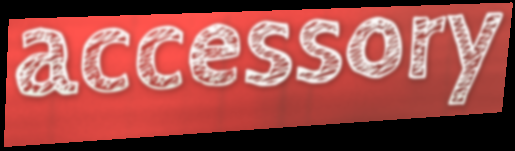
accessory